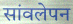
सांवलेपन